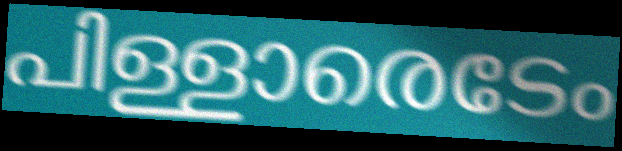
പിള്ളാരെടേം